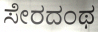
ಸೇರದಂಥ